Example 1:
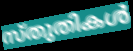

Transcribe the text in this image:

സ്തുതികൾ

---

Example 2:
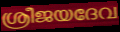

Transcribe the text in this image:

ശ്രീജയദേവ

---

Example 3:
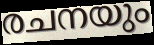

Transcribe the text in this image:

രചനയും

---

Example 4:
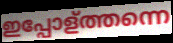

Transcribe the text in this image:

ഇപ്പോള്ത്തന്നെ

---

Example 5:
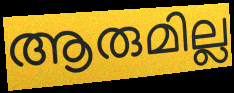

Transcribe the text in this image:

ആരുമില്ല